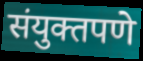
संयुक्तपणे